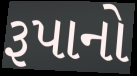
રૂપાનો